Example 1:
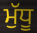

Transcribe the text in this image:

ਮੁੱਧੂ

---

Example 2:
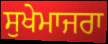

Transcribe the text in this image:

ਸੁਖੇਮਾਜਰਾ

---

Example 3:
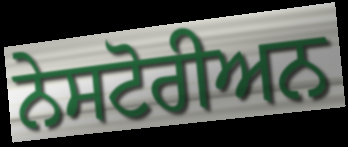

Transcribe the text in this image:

ਨੇਸਟੋਰੀਅਨ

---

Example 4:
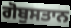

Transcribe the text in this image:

ਗੋਬੁਸਤਾਨ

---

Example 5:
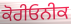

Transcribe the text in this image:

ਕੋਰੀਓਨੀਕ